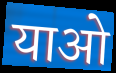
याओ